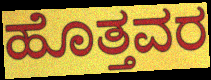
ಹೊತ್ತವರ